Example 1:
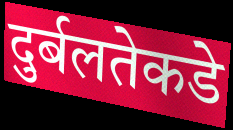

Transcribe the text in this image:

दुर्बलतेकडे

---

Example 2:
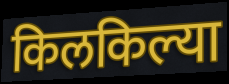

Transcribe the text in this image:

किलकिल्या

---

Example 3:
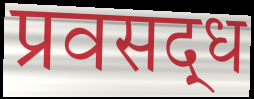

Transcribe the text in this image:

प्रवसद्ध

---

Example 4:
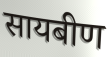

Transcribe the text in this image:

सायबीण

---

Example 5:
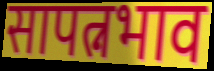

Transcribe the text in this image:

सापत्नभाव